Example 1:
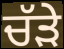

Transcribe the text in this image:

ਚੱੜੇ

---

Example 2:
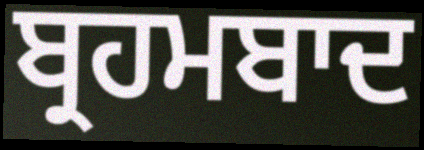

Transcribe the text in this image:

ਬ੍ਰਹਮਬਾਦ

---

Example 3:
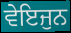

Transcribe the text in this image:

ਵੇਇਜੁਨ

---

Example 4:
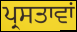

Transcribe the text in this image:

ਪ੍ਰਸਤਾਵਾਂ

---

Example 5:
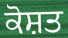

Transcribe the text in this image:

ਕੋਸ਼ਤ